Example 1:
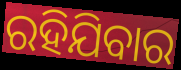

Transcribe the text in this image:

ରହିଯିବାର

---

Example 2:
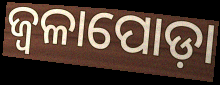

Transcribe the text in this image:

ଜ୍ୱଳାପୋଡ଼ା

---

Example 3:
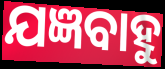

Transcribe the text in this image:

ଯଜ୍ଞବାହୁ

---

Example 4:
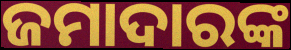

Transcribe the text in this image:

ଜମାଦାରଙ୍କ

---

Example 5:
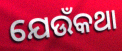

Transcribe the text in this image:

ଯେଉଁକଥା